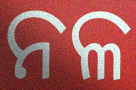
ନଳ